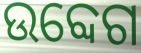
ଉବ୍ଦେଗ